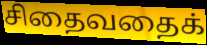
சிதைவதைக்